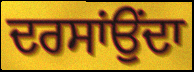
ਦਰਸਾਂਉਂਦਾ